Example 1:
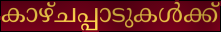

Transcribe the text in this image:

കാഴ്ചപ്പാടുകൾക്ക്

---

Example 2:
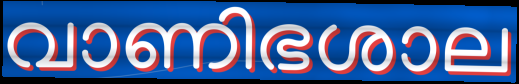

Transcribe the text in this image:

വാണിഭശാല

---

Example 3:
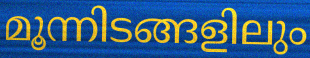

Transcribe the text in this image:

മൂന്നിടങ്ങളിലും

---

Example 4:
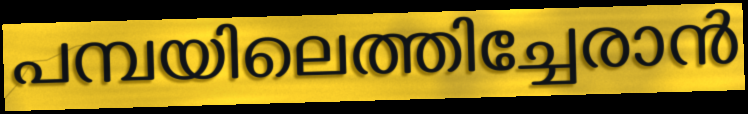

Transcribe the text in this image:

പമ്പയിലെത്തിച്ചേരാൻ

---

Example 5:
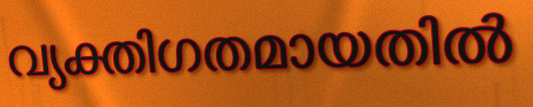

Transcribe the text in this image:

വ്യക്തിഗതമായതിൽ